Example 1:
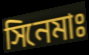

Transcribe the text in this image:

সিনেমাঃ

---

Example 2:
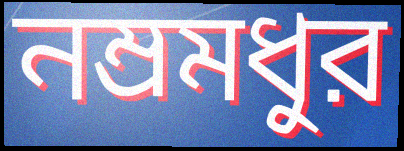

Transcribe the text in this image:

নম্রমধুর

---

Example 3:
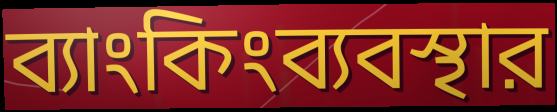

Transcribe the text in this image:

ব্যাংকিংব্যবস্থার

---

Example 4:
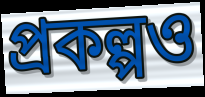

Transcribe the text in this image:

প্রকল্পও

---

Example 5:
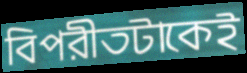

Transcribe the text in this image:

বিপরীতটাকেই